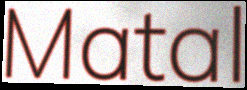
Matal